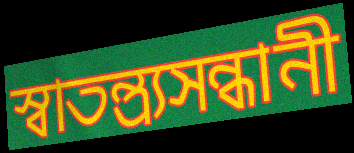
স্বাতন্ত্র্যসন্ধানী